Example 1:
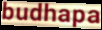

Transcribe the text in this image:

budhapa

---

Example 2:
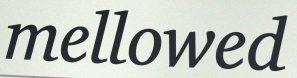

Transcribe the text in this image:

mellowed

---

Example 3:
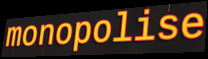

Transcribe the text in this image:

monopolise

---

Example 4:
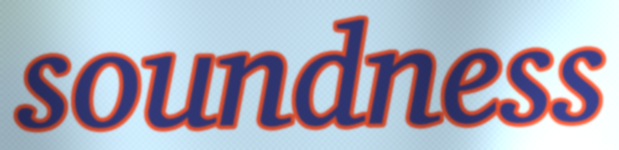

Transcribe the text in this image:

soundness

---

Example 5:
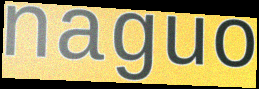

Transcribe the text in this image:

naguo